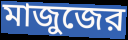
মাজুজের